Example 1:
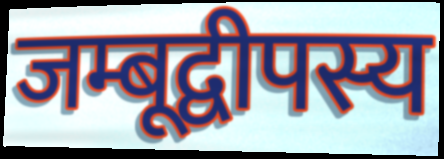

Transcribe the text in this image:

जम्बूद्वीपस्य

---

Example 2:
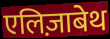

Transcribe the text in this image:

एलिज़ाबेथ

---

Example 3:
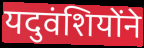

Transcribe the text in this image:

यदुवंशियोंने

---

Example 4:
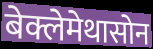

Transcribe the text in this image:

बेक्लेमेथासोन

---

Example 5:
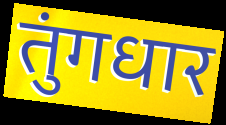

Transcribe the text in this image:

तुंगधार